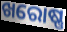
ଖରୋଷ୍ଣ